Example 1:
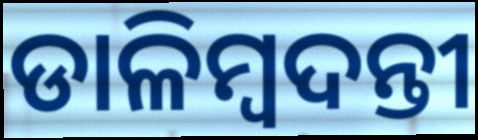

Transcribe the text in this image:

ଡାଳିମ୍ବଦନ୍ତୀ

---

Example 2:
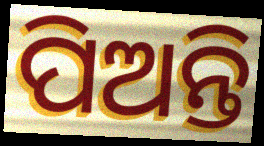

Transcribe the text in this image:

ପିଅନ୍ତି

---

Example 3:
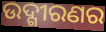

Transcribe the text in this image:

ଉଦ୍ଗୀରଣର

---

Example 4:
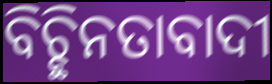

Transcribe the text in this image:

ବିଚ୍ଛିନତାବାଦୀ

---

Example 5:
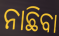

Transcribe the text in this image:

ନାଛିବା